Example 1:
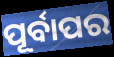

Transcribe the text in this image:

ପୂର୍ବାପର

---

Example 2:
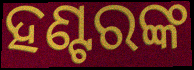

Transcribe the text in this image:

ହଣ୍ଟରଙ୍କ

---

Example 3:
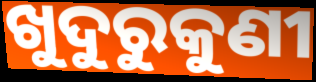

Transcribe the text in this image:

ଖୁଦୁରୁକୁଣୀ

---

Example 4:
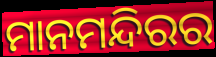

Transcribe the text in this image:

ମାନମନ୍ଦିରର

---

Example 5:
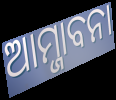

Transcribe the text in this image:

ଆମ୍ଜାବନା